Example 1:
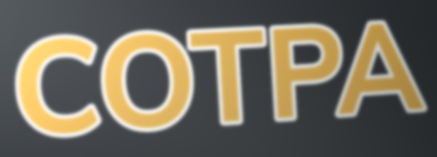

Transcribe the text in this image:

COTPA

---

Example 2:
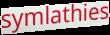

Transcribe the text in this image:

symlathies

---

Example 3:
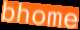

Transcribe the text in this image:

bhome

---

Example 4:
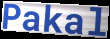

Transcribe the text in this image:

Pakal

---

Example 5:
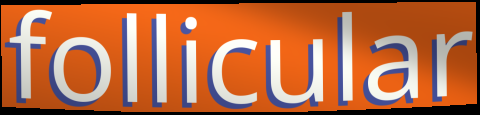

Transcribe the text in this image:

follicular